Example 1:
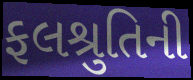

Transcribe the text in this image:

ફલશ્રુતિની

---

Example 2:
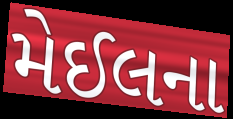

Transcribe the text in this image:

મેઈલના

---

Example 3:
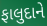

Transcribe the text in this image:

ફાલુદાને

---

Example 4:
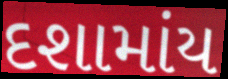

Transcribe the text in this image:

દશામાંય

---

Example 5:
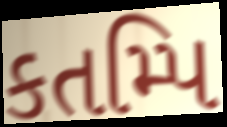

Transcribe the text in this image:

કતમ્પિ